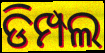
ଡିମ୍ପଲ